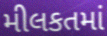
મીલકતમાં